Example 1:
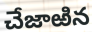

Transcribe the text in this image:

చేజాఱిన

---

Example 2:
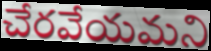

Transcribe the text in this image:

చేరవేయమని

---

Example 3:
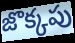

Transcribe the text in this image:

జొక్కపు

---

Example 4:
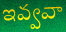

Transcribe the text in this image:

ఇవ్వవా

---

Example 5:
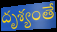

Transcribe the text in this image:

దృశ్యంతే